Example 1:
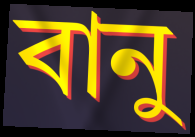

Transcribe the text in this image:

বানু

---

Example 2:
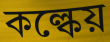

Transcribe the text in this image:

কল্কেয়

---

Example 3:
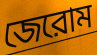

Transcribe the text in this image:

জেরোম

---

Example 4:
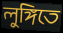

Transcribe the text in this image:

লুঙ্গিতে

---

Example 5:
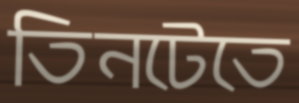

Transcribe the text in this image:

তিনটেতে